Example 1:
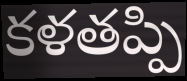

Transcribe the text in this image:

కళతప్పి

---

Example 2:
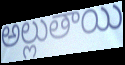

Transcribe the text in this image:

అల్లుతాయి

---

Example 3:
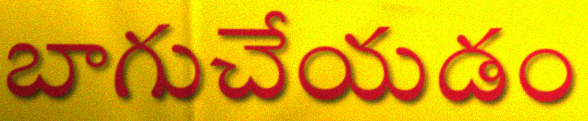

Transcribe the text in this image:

బాగుచేయడం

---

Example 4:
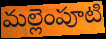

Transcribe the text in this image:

మల్లెంపూటి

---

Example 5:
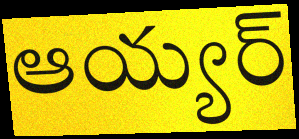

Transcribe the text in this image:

ఆయ్యర్